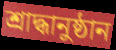
শ্রাদ্ধানুষ্ঠান